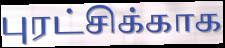
புரட்சிக்காக